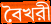
বৈখরী